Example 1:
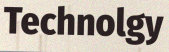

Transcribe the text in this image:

Technolgy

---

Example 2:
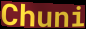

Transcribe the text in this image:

Chuni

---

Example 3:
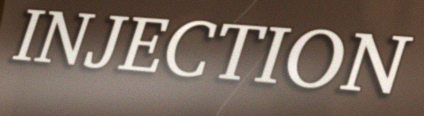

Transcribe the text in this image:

INJECTION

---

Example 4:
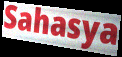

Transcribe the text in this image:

Sahasya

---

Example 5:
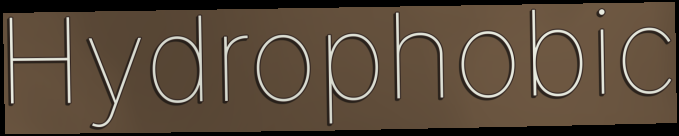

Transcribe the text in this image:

Hydrophobic